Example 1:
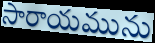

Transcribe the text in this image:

సారాయమును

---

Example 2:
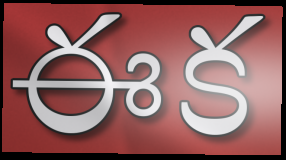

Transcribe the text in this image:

ఈక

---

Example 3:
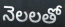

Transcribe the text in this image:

నెలలతో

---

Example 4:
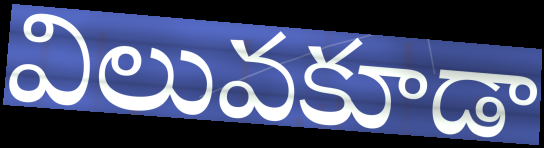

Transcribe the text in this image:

విలువకూడా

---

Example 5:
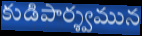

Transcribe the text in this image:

కుడిపార్శ్వమున